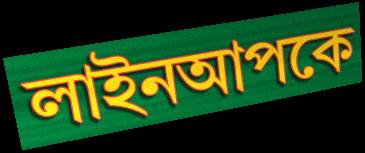
লাইনআপকে